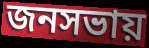
জনসভায়